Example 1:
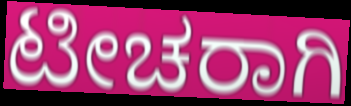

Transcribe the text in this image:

ಟೀಚರಾಗಿ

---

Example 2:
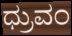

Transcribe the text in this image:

ಧ್ರುವಂ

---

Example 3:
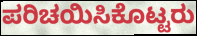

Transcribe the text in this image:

ಪರಿಚಯಿಸಿಕೊಟ್ಟರು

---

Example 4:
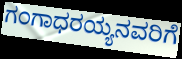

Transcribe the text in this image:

ಗಂಗಾಧರಯ್ಯನವರಿಗೆ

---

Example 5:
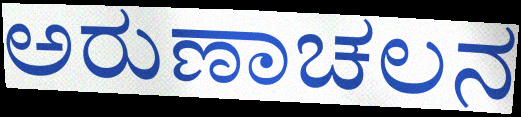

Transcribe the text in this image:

ಅರುಣಾಚಲನ